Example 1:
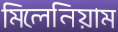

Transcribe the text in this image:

মিলেনিয়াম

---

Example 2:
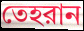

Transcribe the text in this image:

তেহরান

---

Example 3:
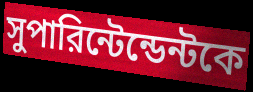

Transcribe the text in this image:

সুপারিন্টেন্ডেন্টকে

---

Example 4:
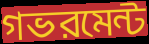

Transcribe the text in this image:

গভরমেন্ট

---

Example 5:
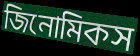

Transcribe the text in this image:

জিনোমিকস